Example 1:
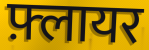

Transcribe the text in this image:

फ़्लायर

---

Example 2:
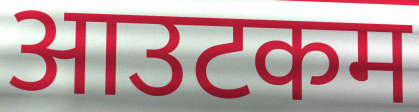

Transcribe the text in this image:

आउटकम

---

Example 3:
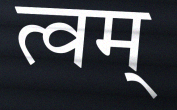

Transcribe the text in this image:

त्वम्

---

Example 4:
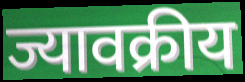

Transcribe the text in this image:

ज्यावक्रीय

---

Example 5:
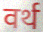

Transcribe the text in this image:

वर्थ